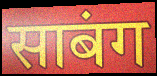
साबंग